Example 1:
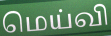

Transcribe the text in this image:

மெய்வி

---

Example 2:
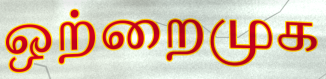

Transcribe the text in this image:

ஒற்றைமுக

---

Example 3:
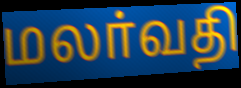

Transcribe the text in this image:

மலர்வதி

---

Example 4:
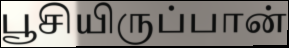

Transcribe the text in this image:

பூசியிருப்பான்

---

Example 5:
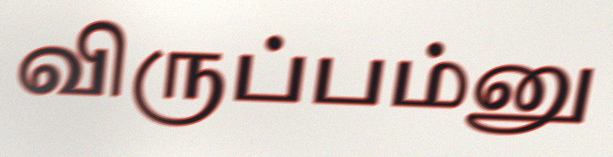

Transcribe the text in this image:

விருப்பம்னு